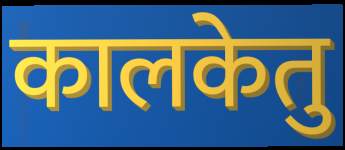
कालकेतु